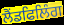
ਲੈਂਡਫਿਲਿੰਗ